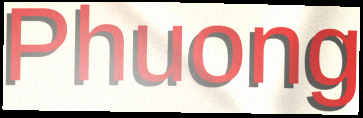
Phuong